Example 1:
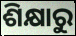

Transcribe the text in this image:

ଶିକ୍ଷାରୁ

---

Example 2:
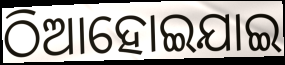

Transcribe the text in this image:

ଠିଆହୋଇଯାଇ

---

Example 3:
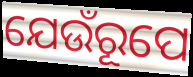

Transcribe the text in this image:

ଯେଉଁରୂପେ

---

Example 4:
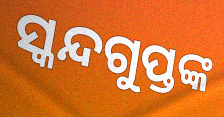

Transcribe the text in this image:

ସ୍କନ୍ଦଗୁପ୍ତଙ୍କ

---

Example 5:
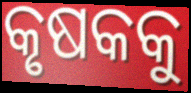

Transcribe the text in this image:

କୃଷକକୁ